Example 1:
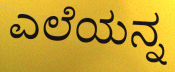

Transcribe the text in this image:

ಎಲೆಯನ್ನ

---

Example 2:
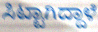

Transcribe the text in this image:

ಸಿಟ್ಟಾಗಿದ್ದಾಳೆ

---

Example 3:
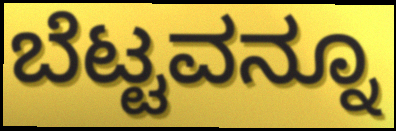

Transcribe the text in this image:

ಬೆಟ್ಟವನ್ನೂ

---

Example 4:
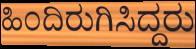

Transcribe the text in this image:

ಹಿಂದಿರುಗಿಸಿದ್ದರು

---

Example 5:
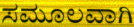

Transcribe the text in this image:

ಸಮೂಲವಾಗಿ